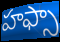
హఫ్సా